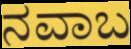
ನವಾಬ